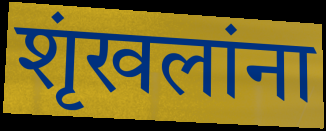
शृंखलांना